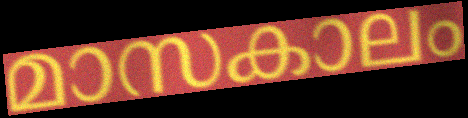
മാസകാലം